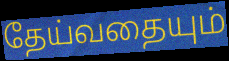
தேய்வதையும்